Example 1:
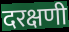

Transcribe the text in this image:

दरक्षणी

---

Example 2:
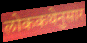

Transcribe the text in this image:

लोककथेनुसार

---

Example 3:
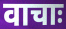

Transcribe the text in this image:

वाचाः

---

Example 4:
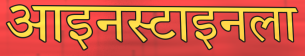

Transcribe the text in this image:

आइनस्टाइनला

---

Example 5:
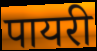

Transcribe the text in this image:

पायरी